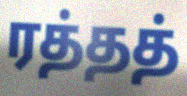
ரத்தத்